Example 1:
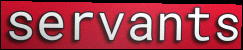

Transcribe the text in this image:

servants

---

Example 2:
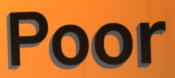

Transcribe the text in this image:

Poor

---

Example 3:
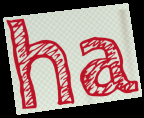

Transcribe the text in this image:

ha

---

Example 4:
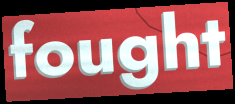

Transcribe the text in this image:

fought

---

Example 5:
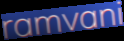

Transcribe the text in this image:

ramvani